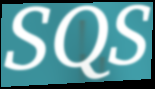
SQS